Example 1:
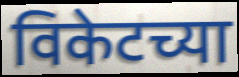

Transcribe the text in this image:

विकेटच्या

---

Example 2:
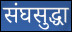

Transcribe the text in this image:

संघसुद्धा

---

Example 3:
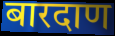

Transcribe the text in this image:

बारदाण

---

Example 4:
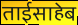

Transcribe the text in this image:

ताईसाहेब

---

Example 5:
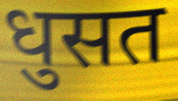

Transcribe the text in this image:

धुसत